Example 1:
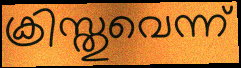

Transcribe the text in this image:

ക്രിസ്തുവെന്ന്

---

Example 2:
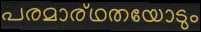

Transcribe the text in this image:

പരമാര്ഥതയോടും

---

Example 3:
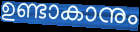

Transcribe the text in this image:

ഉണ്ടാകാനും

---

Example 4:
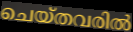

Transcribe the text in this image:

ചെയ്തവരിൽ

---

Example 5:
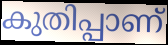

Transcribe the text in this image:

കുതിപ്പാണ്